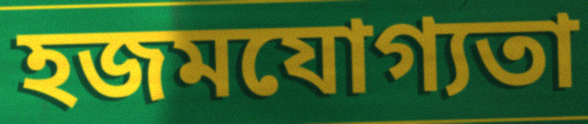
হজমযোগ্যতা